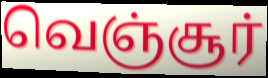
வெஞ்சூர்